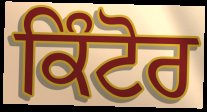
ਕਿੰਟੋਰ